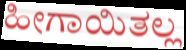
ಹೀಗಾಯಿತಲ್ಲ